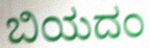
ಬಿಯದಂ